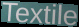
Textile